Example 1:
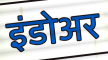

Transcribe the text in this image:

इंडोअर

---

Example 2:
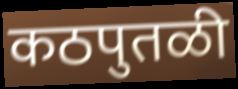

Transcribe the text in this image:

कठपुतळी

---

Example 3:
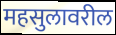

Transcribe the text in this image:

महसुलावरील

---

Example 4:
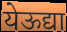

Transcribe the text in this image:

येऊद्या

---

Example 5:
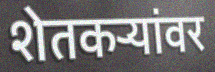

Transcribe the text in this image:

शेतकऱ्यांवर